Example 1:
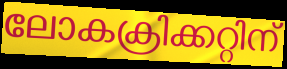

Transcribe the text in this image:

ലോകക്രിക്കറ്റിന്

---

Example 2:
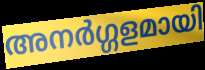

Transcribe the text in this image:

അനർഗ്ഗളമായി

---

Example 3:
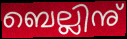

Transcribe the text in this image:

ബെല്ലിനു്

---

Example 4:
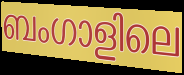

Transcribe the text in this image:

ബംഗാളിലെ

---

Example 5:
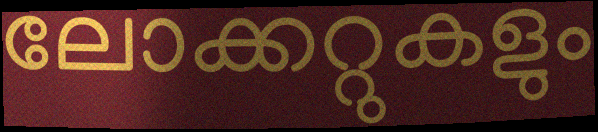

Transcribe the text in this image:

ലോക്കറ്റുകളും